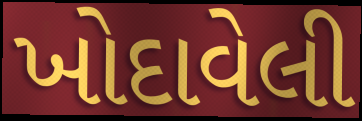
ખોદાવેલી